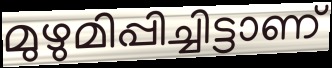
മുഴുമിപ്പിച്ചിട്ടാണ്